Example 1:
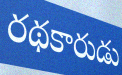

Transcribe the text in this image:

రథకారుడు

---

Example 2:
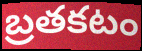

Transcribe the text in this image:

బ్రతకటం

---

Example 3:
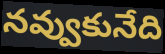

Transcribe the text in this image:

నవ్వుకునేది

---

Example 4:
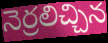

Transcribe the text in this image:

నెర్రలిచ్చిన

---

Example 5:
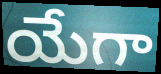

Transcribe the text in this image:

యేగా